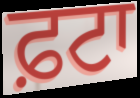
ਫ਼ਟਾ